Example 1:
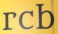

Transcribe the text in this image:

rcb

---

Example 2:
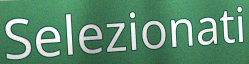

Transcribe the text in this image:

Selezionati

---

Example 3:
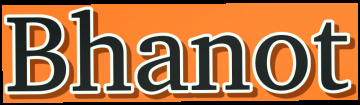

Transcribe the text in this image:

Bhanot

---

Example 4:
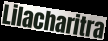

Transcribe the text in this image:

Lilacharitra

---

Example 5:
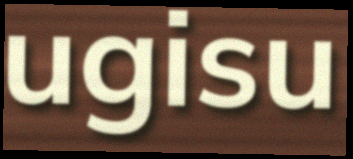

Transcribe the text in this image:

ugisu